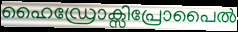
ഹൈഡ്രോക്സിപ്രോപൈൽ